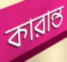
কারান্ত